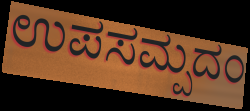
ಉಪಸಮ್ಪದಂ